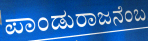
ಪಾಂಡುರಾಜನೆಂಬ